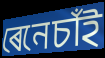
ৰেনেচাঁই